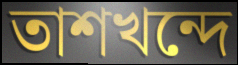
তাশখন্দে